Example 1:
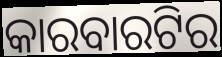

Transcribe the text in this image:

କାରବାରଟିର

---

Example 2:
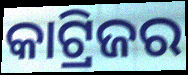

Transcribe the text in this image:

କାଟ୍ରିଜର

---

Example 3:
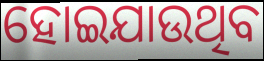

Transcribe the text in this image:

ହୋଇଯାଉଥିବ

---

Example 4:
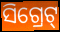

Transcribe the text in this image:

ସିଗ୍ରେଟ୍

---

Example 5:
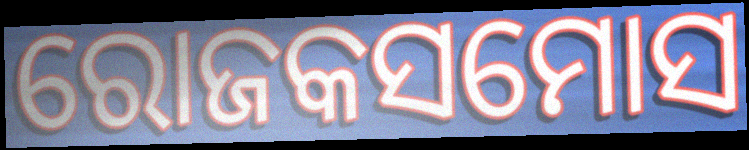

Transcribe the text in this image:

ରୋଜକସମୋସ